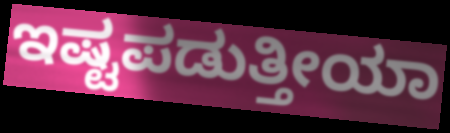
ಇಷ್ಟಪಡುತ್ತೀಯಾ